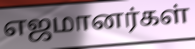
எஜமானர்கள்